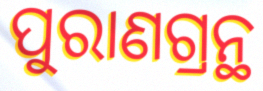
ପୁରାଣଗ୍ରନ୍ଥ